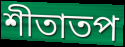
শীতাতপ